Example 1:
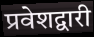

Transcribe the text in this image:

प्रवेशद्वारी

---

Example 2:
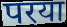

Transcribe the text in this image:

परया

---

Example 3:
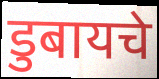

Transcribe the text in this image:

डुबायचे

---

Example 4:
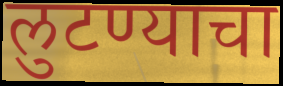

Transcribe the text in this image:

लुटण्याचा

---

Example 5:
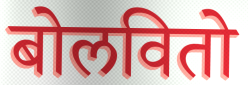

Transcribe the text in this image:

बोलवितो